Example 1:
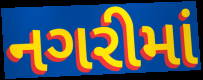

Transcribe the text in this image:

નગરીમાં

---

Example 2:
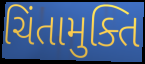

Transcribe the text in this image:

ચિંતામુક્તિ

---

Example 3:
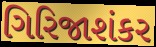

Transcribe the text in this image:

ગિરિજાશંકર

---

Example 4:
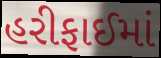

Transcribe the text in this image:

હરીફાઈમાં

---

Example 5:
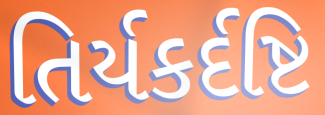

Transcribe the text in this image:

તિર્યકર્દષ્ટિ